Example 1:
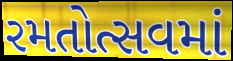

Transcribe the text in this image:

રમતોત્સવમાં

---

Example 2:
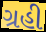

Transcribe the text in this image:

ગ્રહી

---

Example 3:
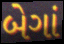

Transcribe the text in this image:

બેગાં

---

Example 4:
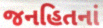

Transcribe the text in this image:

જનહિતનાં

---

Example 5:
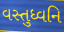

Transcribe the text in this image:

વસ્તુધ્વનિ